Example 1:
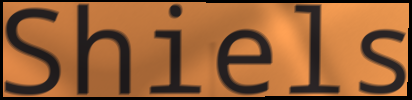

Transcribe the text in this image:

Shiels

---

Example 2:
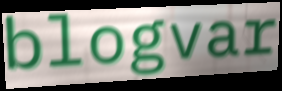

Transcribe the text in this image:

blogvar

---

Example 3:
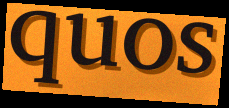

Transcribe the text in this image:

quos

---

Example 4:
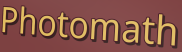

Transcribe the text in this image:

Photomath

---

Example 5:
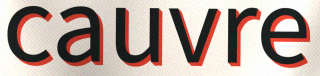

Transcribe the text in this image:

cauvre